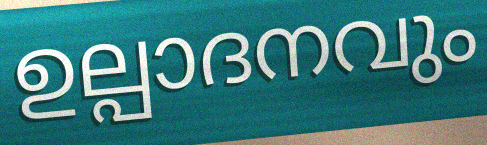
ഉല്പാദനവും